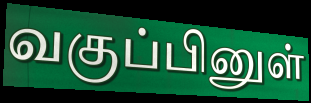
வகுப்பினுள்